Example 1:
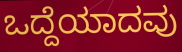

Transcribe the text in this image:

ಒದ್ದೆಯಾದವು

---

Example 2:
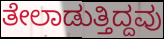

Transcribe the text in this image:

ತೇಲಾಡುತ್ತಿದ್ದವು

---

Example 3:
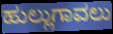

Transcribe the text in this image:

ಹುಲ್ಲುಗಾವಲು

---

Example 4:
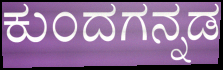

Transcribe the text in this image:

ಕುಂದಗನ್ನಡ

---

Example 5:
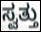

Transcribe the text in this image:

ಸ್ವತ್ತು